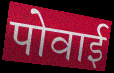
पोवाई